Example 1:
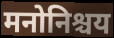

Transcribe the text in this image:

मनोनिश्चय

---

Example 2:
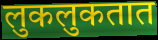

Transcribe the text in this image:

लुकलुकतात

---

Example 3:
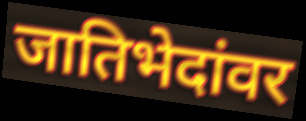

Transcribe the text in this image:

जातिभेदांवर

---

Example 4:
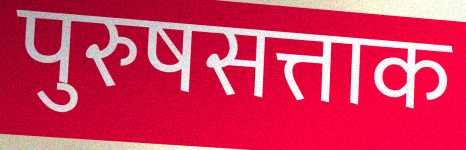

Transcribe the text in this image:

पुरुषसत्ताक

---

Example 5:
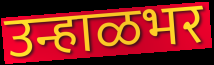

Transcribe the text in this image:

उन्हाळभर